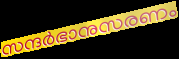
സന്ദർഭാനുസരണം